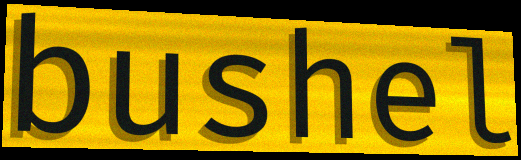
bushel